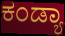
ಕಂಡ್ಯಾ